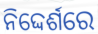
ନିଦ୍ଦେର୍ଶରେ